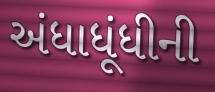
અંધાધૂંધીની